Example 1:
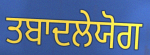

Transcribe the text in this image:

ਤਬਾਦਲੇਯੋਗ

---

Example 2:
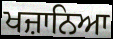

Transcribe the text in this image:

ਖਜ਼ਾਨਿਆ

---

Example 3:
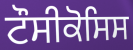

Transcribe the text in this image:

ਟੌਸੀਕੋਸਿਸ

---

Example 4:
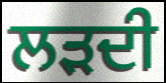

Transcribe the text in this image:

ਲੜਦੀ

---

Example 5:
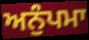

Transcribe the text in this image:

ਅਨੁੰਪਮਾ